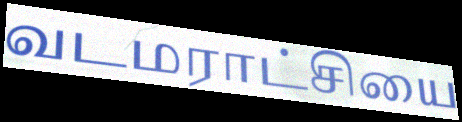
வடமராட்சியை